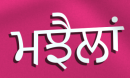
ਮਝੈਲਾਂ